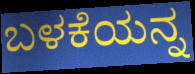
ಬಳಕೆಯನ್ನ